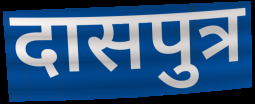
दासपुत्र